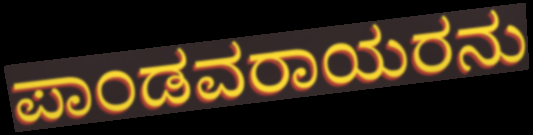
ಪಾಂಡವರಾಯರನು